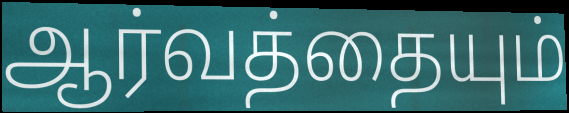
ஆர்வத்தையும்